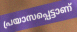
പ്രയാസപ്പെട്ടാണ്